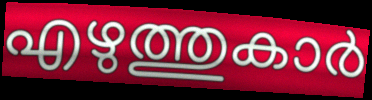
എഴുത്തുകാർ